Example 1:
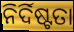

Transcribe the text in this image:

ନିର୍ଦିଷ୍ଟତା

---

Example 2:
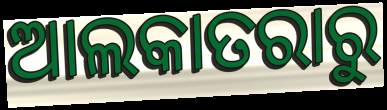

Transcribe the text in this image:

ଆଲକାତରାରୁ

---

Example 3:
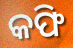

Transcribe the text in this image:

କଫି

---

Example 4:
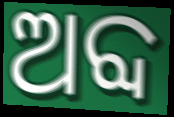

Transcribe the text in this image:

ଅବ୍ଦ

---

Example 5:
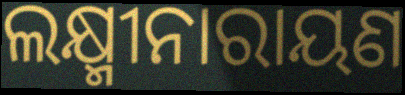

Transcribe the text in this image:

ଲକ୍ଷ୍ମୀନାରାୟଣ